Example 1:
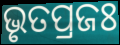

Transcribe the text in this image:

ଭୃତପ୍ରଜଃ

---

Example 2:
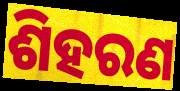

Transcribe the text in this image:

ଶିହରଣ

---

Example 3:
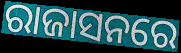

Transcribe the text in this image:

ରାଜାସନରେ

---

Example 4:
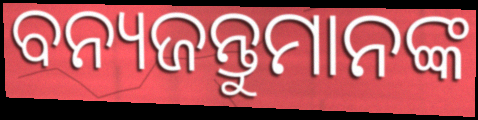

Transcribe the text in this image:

ବନ୍ୟଜନ୍ତୁମାନଙ୍କ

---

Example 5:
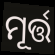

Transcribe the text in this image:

ମୂର୍ତ୍ତ